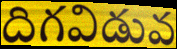
దిగవిడువ